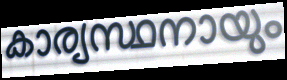
കാര്യസ്ഥനായും